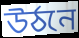
উঠনে